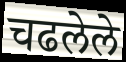
चढलेले